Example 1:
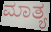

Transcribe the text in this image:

ಮಾತ್ಯ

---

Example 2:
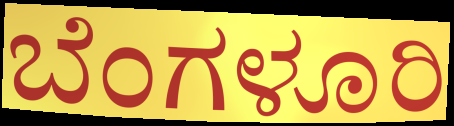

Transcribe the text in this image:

ಬೆಂಗಳೂರಿ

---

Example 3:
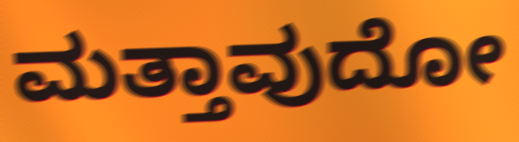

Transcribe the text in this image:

ಮತ್ತಾವುದೋ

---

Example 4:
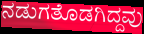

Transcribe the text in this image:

ನಡುಗತೊಡಗಿದ್ದವು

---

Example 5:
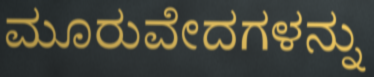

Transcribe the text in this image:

ಮೂರುವೇದಗಳನ್ನು